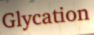
Glycation